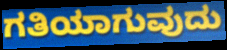
ಗತಿಯಾಗುವುದು